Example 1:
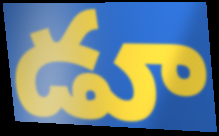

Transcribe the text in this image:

డూ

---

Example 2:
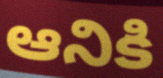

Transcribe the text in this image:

ఆనికి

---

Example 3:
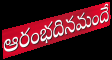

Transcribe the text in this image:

ఆరంభదినమందే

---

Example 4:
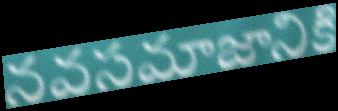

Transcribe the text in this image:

నవసమాజానికి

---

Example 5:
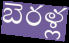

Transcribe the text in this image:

బెరళ్ల